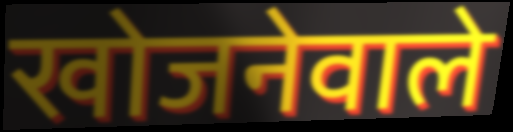
खोजनेवाले